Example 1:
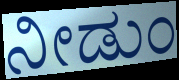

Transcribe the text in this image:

ನೀಡುಂ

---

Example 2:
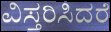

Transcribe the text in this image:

ವಿಸ್ತರಿಸಿದರೆ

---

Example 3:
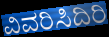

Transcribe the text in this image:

ವಿವರಿಸಿದಿರಿ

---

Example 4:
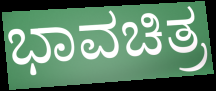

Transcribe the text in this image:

ಭಾವಚಿತ್ರ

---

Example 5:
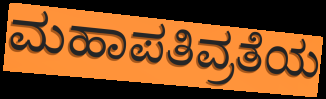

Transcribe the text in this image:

ಮಹಾಪತಿವ್ರತೆಯ